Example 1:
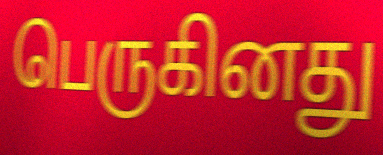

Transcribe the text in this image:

பெருகினது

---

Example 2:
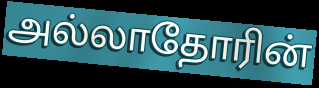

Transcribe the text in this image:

அல்லாதோரின்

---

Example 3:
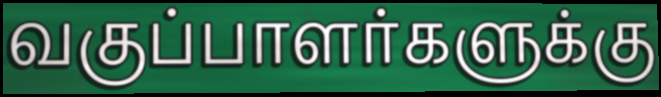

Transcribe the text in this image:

வகுப்பாளர்களுக்கு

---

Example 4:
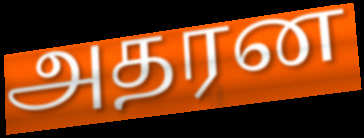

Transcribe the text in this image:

அதரன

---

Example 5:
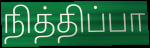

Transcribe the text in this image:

நித்திப்பா